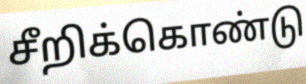
சீறிக்கொண்டு